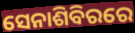
ସେନାଶିବିରରେ